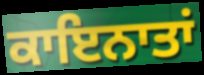
ਕਾਇਨਾਤਾਂ